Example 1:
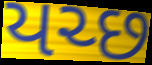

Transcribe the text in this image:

યચ્છ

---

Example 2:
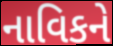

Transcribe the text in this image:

નાવિકને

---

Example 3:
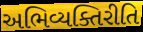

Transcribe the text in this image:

અભિવ્યક્તિરીતિ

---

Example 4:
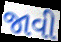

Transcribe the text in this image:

જાવી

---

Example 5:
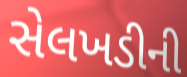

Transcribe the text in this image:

સેલખડીની